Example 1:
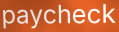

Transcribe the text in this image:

paycheck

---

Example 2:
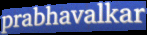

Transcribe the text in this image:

prabhavalkar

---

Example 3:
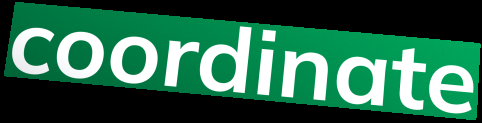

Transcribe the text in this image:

coordinate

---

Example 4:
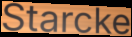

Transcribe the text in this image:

Starcke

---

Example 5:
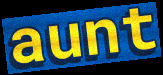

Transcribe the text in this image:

aunt